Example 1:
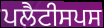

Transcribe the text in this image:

ਪਲੈਟੀਸਪਸ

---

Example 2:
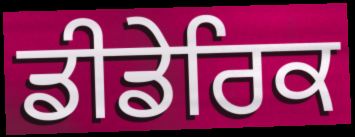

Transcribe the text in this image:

ਡੀਡੇਰਿਕ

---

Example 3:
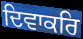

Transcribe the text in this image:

ਦਿਵਾਕਰਿ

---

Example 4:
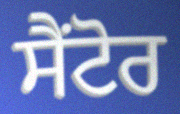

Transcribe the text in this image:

ਸੈਂਟੋਰ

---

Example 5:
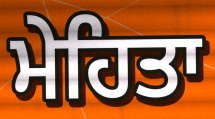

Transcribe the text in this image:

ਮੇਹਿਤਾ